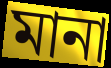
মানা